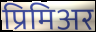
प्रिमिअर